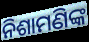
ନିଶାମଣିଙ୍କ